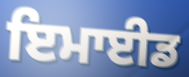
ਇਮਾਈਡ